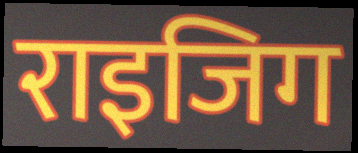
राइजिग